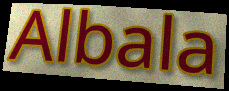
Albala